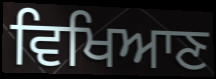
ਵਿਖਿਆਣ